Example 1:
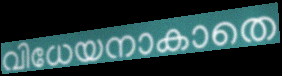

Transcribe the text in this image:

വിധേയനാകാതെ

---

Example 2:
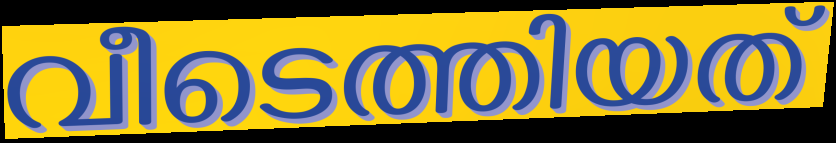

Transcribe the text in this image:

വീടെത്തിയത്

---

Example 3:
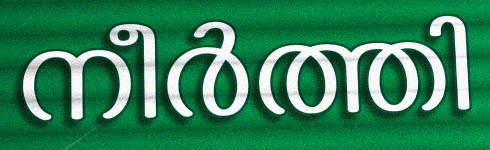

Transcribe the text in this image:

നീർത്തി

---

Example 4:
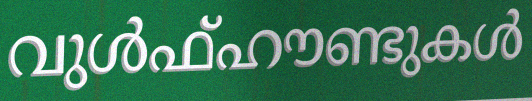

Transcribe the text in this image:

വുൾഫ്ഹൗണ്ടുകൾ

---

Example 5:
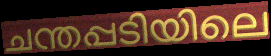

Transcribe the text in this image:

ചന്തപ്പടിയിലെ